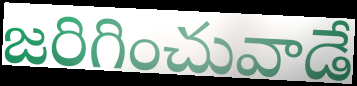
జరిగించువాడే